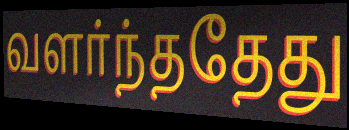
வளர்ந்ததேது